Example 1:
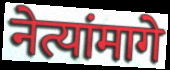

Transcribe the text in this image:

नेत्यांमागे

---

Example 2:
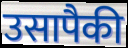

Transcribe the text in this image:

उसापैकी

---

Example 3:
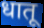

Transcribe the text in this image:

धातू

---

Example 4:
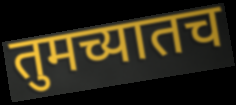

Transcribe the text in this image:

तुमच्यातच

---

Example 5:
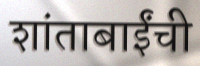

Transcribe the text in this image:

शांताबाईंची